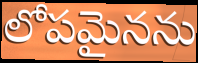
లోపమైనను